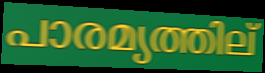
പാരമ്യത്തില്